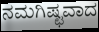
ನಮಗಿಷ್ಟವಾದ